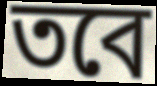
তবে